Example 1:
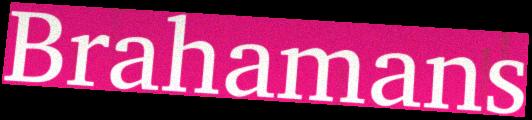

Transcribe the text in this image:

Brahamans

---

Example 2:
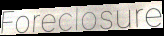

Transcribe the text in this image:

Foreclosure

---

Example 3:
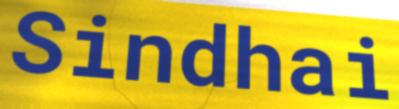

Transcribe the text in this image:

Sindhai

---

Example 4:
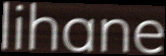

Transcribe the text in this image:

lihane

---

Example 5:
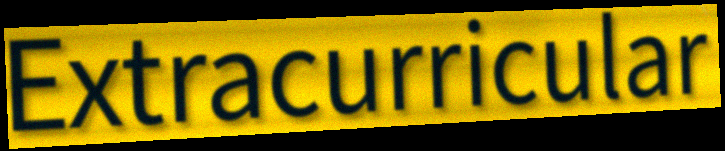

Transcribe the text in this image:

Extracurricular